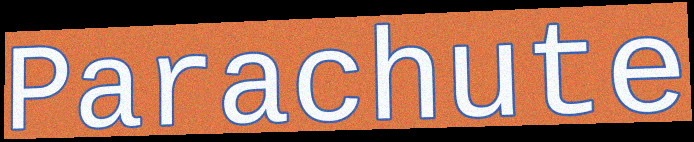
Parachute